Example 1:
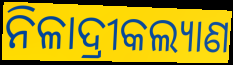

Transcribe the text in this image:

ନିଳାଦ୍ରୀକଲ୍ୟାଣ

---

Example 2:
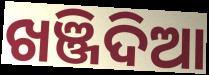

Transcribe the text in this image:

ଖଞ୍ଜିଦିଆ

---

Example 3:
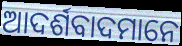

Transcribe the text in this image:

ଆଦର୍ଶବାଦମାନେ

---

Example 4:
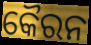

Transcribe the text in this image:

କୈରନ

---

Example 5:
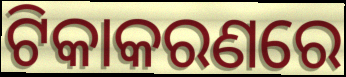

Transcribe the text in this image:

ଟିକାକରଣରେ